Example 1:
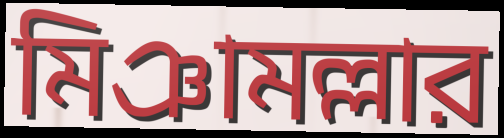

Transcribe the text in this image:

মিঞামল্লার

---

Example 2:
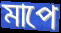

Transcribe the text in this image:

মাপে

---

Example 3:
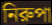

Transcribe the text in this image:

নিরুপা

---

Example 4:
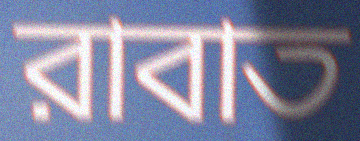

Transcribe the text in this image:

রাবাত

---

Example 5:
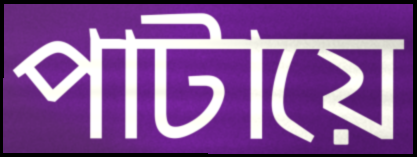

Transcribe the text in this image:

পাটায়ে